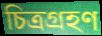
চিত্ৰগ্ৰহণ